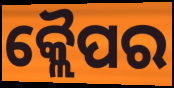
କ୍ଲୈପର